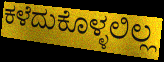
ಕಳೆದುಕೊಳ್ಳಲಿಲ್ಲ